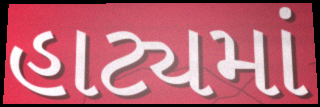
હાટ્યમાં